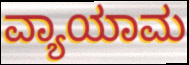
ವ್ಯಾಯಾಮ